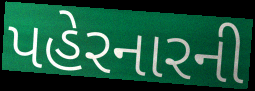
પહેરનારની